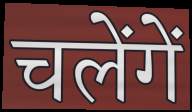
चलेंगें